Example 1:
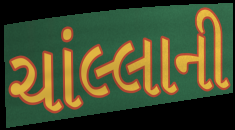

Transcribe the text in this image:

ચાંલ્લાની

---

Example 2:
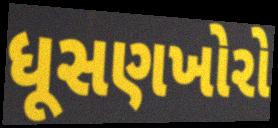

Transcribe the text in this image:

ધૂસણખોરો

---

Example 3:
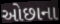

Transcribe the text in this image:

ઓછાના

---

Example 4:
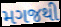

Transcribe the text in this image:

મગજથી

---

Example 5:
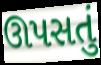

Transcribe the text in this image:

ઊપસતું